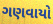
ગણવાયો